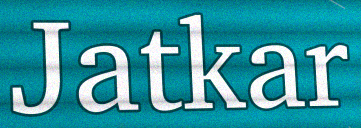
Jatkar